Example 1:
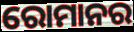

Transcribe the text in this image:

ରୋମାନର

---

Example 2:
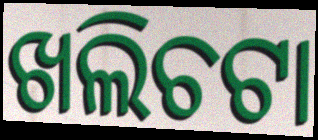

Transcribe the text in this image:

ଖଲିଚଟା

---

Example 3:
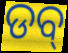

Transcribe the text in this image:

ଡବ୍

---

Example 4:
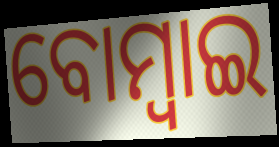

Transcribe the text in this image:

ବୋମ୍ୱାଇ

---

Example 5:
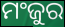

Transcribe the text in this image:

ମଂଜୁର